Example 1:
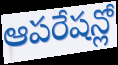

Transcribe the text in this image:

ఆపరేషన్లో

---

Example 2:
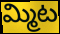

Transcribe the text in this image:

మ్మిట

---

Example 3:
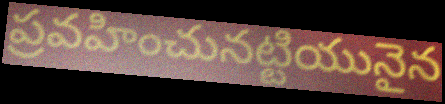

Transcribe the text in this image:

ప్రవహించునట్టియునైన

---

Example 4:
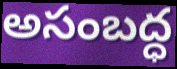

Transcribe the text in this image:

అసంబద్ధ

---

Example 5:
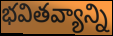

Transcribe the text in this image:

భవితవ్యాన్ని